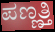
ಪಣ್ಣತ್ತಿ